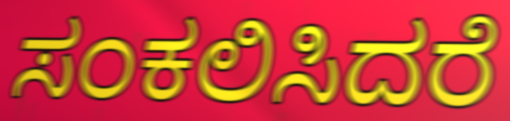
ಸಂಕಲಿಸಿದರೆ